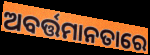
ଅବର୍ତ୍ତମାନତାରେ